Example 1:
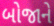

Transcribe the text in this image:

બોજાને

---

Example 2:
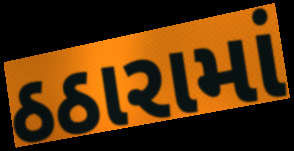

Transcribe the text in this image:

ઠઠારામાં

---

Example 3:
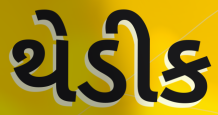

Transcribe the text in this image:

થેડીક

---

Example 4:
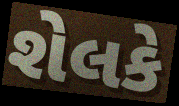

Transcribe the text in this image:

શેલકે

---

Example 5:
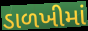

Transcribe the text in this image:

ડાળખીમાં